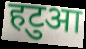
हटुआ